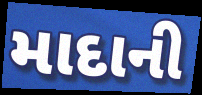
માદાની